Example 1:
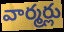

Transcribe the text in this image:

వార్మర్లు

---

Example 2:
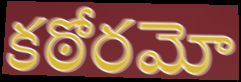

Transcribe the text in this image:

కఠోరమో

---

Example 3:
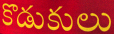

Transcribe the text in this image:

కొడుకులు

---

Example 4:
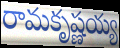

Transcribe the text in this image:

రామకృష్ణయ్య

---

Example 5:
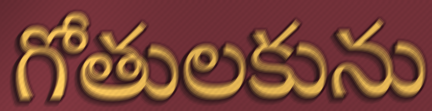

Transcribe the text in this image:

గోతులకును